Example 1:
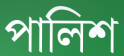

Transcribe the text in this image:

পালিশ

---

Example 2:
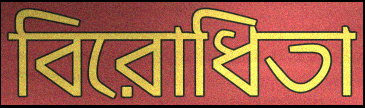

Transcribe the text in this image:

বিরোধিতা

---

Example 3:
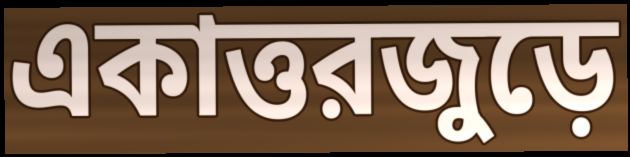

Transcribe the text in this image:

একাত্তরজুড়ে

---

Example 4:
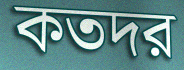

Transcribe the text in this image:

কতদর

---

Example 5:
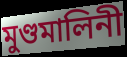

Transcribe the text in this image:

মুণ্ডমালিনী